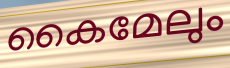
കൈമേലും